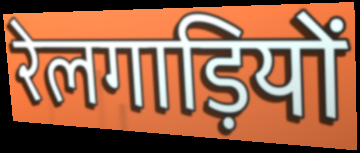
रेलगाड़ियों